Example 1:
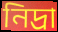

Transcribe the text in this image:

নিদ্ৰা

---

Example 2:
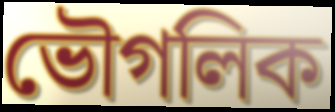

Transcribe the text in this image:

ভৌগলিক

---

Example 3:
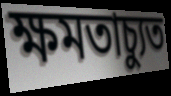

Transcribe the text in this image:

ক্ষমতাচ্যুত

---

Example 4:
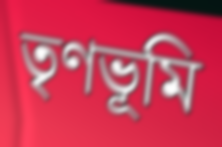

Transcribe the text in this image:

তৃণভূমি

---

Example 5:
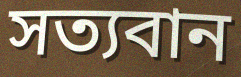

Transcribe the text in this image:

সত্যবান